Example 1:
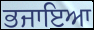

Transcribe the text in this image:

ਭਜਾਇਆ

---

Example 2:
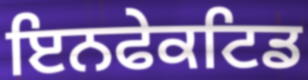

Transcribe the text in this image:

ਇਨਫੇਕਟਿਡ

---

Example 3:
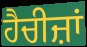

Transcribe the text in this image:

ਹੈਚੀਜ਼ਾਂ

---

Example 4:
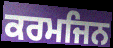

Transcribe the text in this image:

ਕਰਮਜਿਨ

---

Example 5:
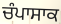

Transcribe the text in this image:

ਚੰਪਾਸਾਕ